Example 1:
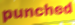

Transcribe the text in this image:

punched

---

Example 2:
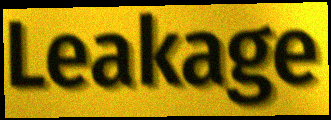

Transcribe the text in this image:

Leakage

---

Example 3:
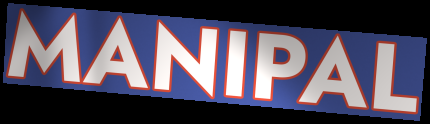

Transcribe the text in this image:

MANIPAL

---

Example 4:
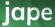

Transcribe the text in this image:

jape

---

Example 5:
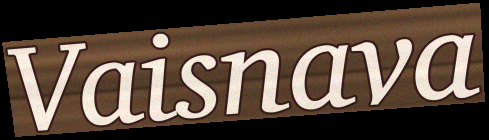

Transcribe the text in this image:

Vaisnava